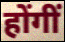
होंगीं